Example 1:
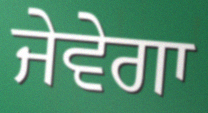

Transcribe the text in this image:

ਜੇਵੇਗਾ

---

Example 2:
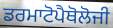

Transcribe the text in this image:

ਡਰਮਾਟੋਪੈਥੋਲੋਜੀ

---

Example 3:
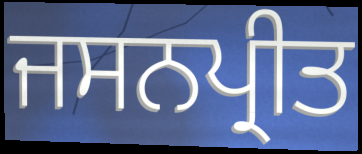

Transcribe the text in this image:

ਜਸਨਪ੍ਰੀਤ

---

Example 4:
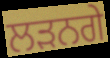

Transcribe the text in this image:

ਲੜਨਗੇ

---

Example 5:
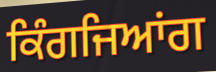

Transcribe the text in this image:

ਕਿੰਗਜਿਆਂਗ